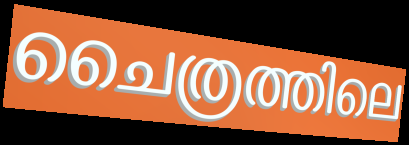
ചൈത്രത്തിലെ